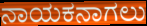
ನಾಯಕನಾಗಲು